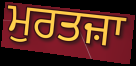
ਮੁਰਤਜ਼ਾ